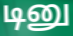
டினு